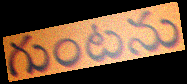
గుంటను